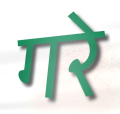
गरे